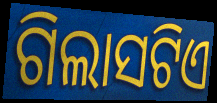
ଗିଲାସଟିଏ